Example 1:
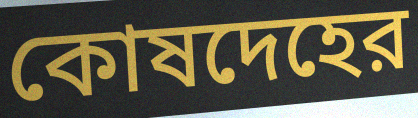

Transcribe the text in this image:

কোষদেহের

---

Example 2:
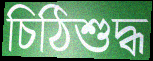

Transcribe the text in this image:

চিঠিশুদ্ধ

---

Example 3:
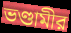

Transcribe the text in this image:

ভণ্ডামীর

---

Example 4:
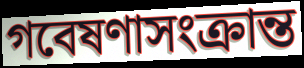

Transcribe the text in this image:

গবেষণাসংক্রান্ত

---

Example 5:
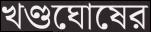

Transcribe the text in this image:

খণ্ডঘোষের